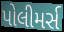
પોલીમર્સ